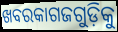
ଖବରକାଗଜଗୁଡ଼ିକୁ